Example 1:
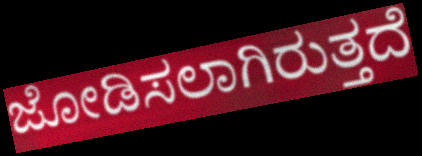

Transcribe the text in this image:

ಜೋಡಿಸಲಾಗಿರುತ್ತದೆ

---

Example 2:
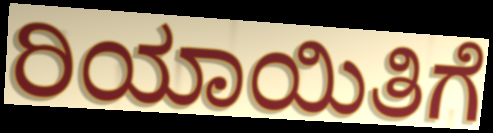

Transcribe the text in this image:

ರಿಯಾಯಿತಿಗೆ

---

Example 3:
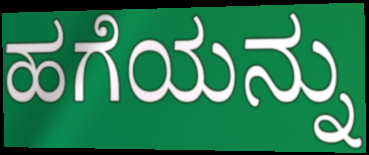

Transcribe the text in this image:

ಹಗೆಯನ್ನು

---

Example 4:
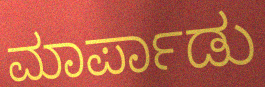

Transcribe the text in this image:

ಮಾರ್ಪಾಡು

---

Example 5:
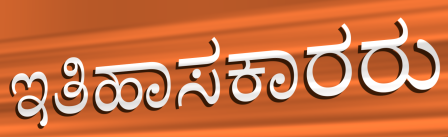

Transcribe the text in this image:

ಇತಿಹಾಸಕಾರರು